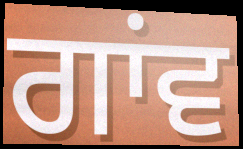
ਗਾਂਵ